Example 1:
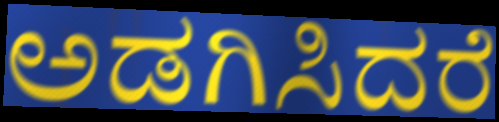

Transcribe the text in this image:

ಅಡಗಿಸಿದರೆ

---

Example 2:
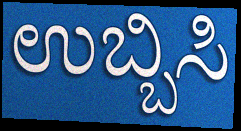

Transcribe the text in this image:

ಉಬ್ಬಿಸಿ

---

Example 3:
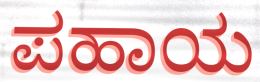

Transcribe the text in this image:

ಪಹಾಯ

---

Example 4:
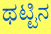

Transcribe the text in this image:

ಥಟ್ಟಿನ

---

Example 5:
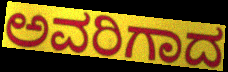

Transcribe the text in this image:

ಅವರಿಗಾದ